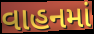
વાહનમાં